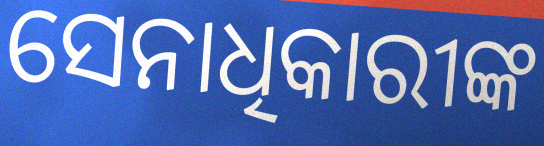
ସେନାଧିକାରୀଙ୍କ